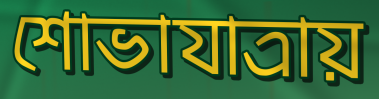
শোভাযাত্রায়